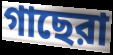
গাছেরা